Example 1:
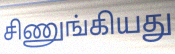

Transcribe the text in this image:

சிணுங்கியது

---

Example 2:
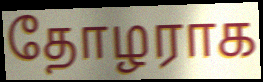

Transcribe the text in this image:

தோழராக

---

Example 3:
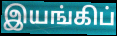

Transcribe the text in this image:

இயங்கிப்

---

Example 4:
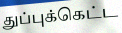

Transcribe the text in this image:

துப்புக்கெட்ட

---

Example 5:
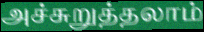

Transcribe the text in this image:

அச்சுறுத்தலாம்